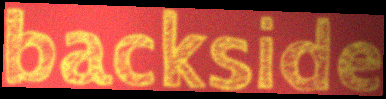
backside